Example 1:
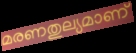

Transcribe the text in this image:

മരണതുല്യമാണ്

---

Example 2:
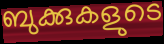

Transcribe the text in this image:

ബുക്കുകളുടെ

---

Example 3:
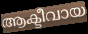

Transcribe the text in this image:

ആക്ടീവായ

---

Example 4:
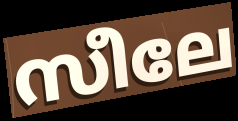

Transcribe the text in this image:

സീലേ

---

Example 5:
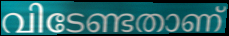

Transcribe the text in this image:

വിടേണ്ടതാണ്